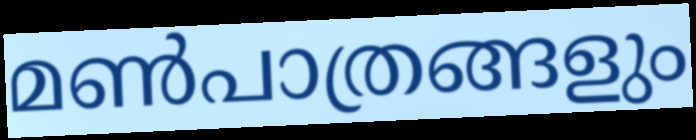
മൺപാത്രങ്ങളും